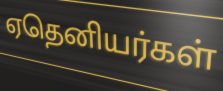
ஏதெனியர்கள்